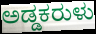
ಅಡ್ಡಕರುಳು